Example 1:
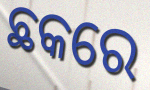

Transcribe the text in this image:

ଛକରେ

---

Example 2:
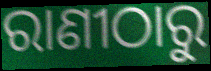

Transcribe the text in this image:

ରାଣୀଠାରୁ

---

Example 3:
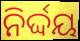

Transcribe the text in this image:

ନିର୍ଦ୍ଦୟ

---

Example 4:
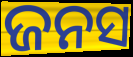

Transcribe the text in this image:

ଜନସ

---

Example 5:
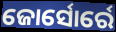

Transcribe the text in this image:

ଜୋର୍ସୋର୍ରେ